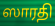
ஸாரதி